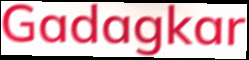
Gadagkar